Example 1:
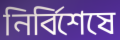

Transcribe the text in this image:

নিৰ্বিশেষে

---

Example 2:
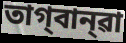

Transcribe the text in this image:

তাগ্‌বান্‌ৱা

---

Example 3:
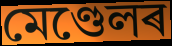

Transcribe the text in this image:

মেণ্ডেলৰ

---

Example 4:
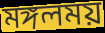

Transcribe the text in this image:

মঙ্গলময়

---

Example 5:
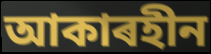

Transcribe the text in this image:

আকাৰহীন